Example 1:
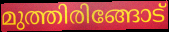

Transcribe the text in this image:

മുത്തിരിങ്ങോട്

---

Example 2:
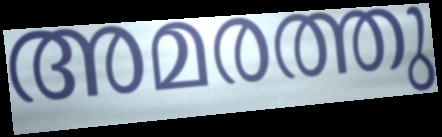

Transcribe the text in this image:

അമരത്തു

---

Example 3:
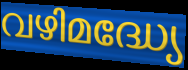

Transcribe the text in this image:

വഴിമദ്ധ്യേ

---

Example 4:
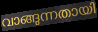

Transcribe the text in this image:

വാങ്ങുന്നതായി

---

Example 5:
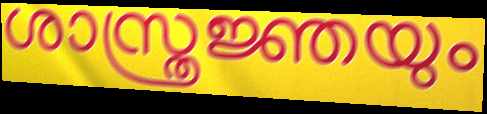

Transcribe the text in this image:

ശാസ്ത്രജ്ഞയും